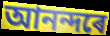
আনন্দৰে